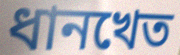
ধানখেত